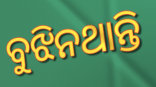
ବୁଝିନଥାନ୍ତି